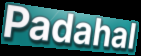
Padahal